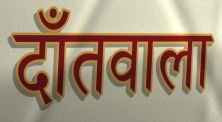
दाँतवाला